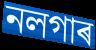
নলগাৰ